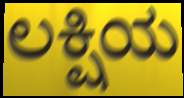
ಲಕ್ಷಿಯ